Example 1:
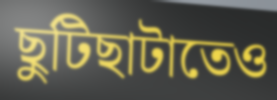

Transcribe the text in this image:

ছুটিছাটাতেও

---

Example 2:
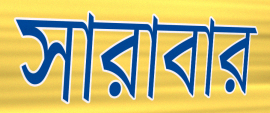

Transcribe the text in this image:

সারাবার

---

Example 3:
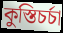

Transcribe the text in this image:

কুস্তিচর্চা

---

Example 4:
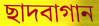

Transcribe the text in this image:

ছাদবাগান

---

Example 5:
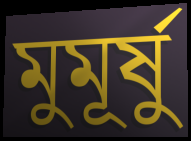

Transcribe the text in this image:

মুমূর্ষু